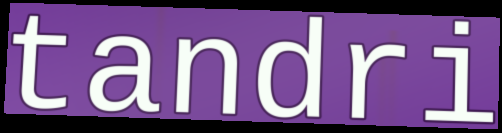
tandri